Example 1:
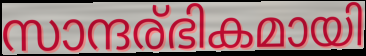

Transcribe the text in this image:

സാന്ദര്ഭികമായി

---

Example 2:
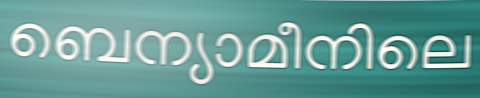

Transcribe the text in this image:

ബെന്യാമീനിലെ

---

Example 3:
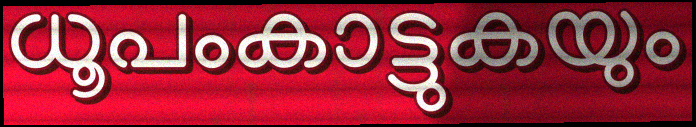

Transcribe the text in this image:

ധൂപംകാട്ടുകയും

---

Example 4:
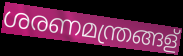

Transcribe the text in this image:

ശരണമന്ത്രങ്ങള്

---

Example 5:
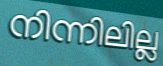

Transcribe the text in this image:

നിന്നിലില്ല